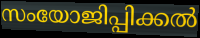
സംയോജിപ്പിക്കൽ